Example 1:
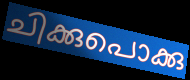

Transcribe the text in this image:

ചിക്കുപൊക്കു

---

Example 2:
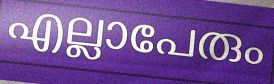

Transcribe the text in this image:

എല്ലാപേരും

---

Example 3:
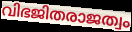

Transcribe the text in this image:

വിഭജിതരാജത്വം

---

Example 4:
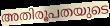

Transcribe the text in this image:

അതിരൂപതയുടെ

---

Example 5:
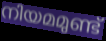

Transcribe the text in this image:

നിയമമുണ്ട്